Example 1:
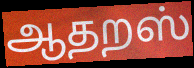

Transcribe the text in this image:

ஆதறஸ்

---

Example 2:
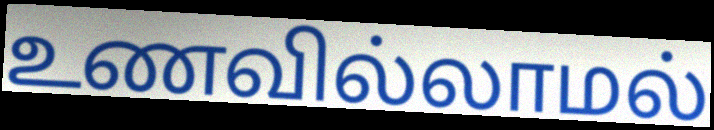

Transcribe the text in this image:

உணவில்லாமல்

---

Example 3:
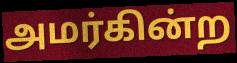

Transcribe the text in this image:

அமர்கின்ற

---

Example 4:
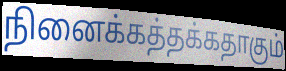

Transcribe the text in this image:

நினைக்கத்தக்கதாகும்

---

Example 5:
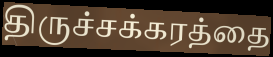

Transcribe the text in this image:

திருச்சக்கரத்தை